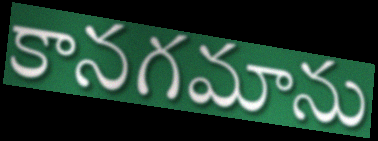
కానగమాను